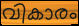
വികാരം